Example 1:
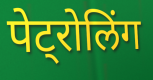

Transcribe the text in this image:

पेट्रोलिंग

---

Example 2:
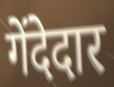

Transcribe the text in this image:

गेंदेदार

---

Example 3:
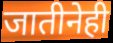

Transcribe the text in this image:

जातीनेही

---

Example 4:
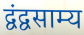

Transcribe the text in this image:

द्वंद्वसाम्य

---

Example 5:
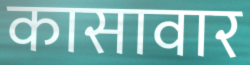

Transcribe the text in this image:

कासावार